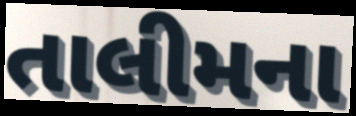
તાલીમના